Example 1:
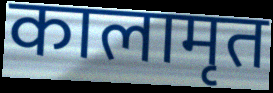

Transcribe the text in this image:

कालामृत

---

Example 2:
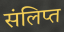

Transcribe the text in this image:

संलिप्त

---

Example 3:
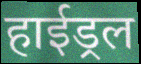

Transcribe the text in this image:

हाईड्रल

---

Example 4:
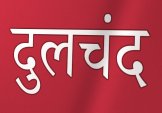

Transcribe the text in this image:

दुलचंद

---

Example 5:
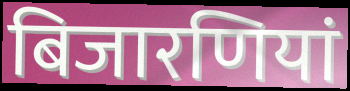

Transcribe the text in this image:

बिजारणियां